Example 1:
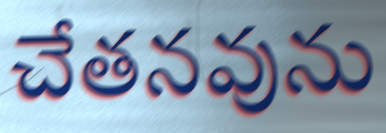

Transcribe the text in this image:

చేతనవును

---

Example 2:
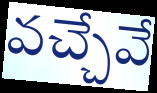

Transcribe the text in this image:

వచ్చేవే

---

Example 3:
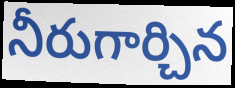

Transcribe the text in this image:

నీరుగార్చిన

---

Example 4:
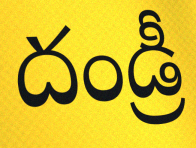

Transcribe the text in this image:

దండ్రీ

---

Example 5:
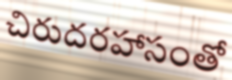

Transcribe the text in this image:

చిరుదరహాసంతో